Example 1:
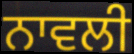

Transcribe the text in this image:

ਨਾਵਲੀ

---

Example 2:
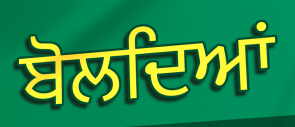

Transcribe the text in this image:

ਬੋਲਦਿਆਂ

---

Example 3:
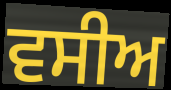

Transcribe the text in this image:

ਵਸੀਅ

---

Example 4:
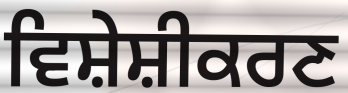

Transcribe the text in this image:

ਵਿਸ਼ੇਸ਼ੀਕਰਣ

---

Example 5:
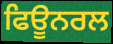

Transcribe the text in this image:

ਫਿਊਨਰਲ